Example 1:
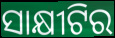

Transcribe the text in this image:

ସାକ୍ଷୀଟିର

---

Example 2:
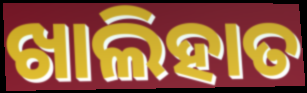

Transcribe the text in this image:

ଖାଲିହାତ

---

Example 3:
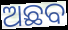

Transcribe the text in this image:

ଅଛବ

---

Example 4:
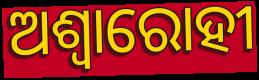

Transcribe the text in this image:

ଅଶ୍ଵାରୋହୀ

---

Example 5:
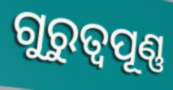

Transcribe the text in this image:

ଗୁରୁତ୍ବପୂଣ୍ଣ